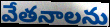
వేతనాలను